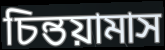
চিন্তয়ামাস